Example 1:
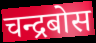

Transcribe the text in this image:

चन्द्रबोस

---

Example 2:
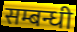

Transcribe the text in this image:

सम्बन्धी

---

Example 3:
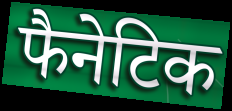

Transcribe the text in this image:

फैनेटिक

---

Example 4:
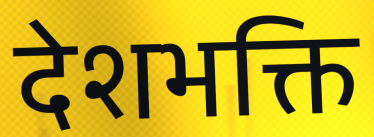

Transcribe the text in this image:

देशभक्ति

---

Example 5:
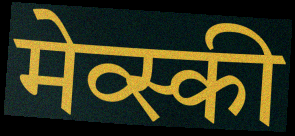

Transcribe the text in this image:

मेव्स्की